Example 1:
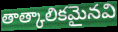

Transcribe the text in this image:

తాత్కాలికమైనవి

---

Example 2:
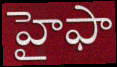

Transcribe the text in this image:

హైఫా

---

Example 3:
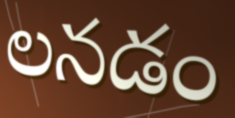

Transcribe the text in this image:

లనడం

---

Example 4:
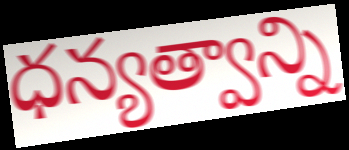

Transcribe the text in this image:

ధన్యత్వాన్ని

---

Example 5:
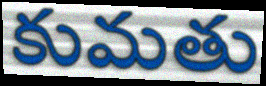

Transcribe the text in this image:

కుమతు